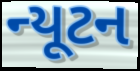
ન્યૂટન